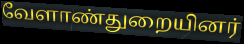
வேளாண்துறையினர்